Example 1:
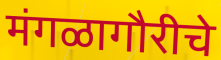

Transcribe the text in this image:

मंगळागौरीचे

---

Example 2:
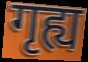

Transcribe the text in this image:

गृह्य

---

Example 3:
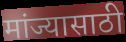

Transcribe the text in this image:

मांज्यासाठी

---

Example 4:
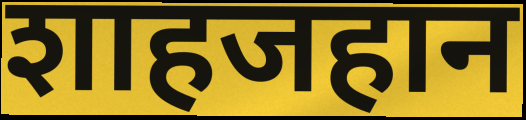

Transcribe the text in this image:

शाहजहान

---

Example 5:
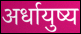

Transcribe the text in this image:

अर्धायुष्य